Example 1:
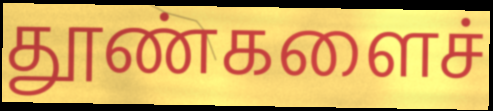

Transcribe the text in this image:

தூண்களைச்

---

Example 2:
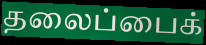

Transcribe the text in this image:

தலைப்பைக்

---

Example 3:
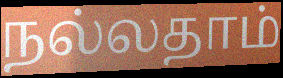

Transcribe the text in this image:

நல்லதாம்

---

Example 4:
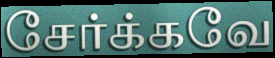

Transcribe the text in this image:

சேர்க்கவே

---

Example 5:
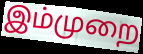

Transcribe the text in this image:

இம்முறை